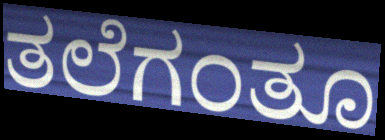
ತಲೆಗಂತೂ